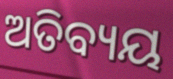
ଅତିବ୍ୟୟ